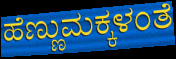
ಹೆಣ್ಣುಮಕ್ಕಳಂತೆ